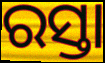
ରସ୍ତା